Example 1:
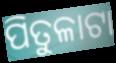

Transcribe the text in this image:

ପିତୁଳାଟା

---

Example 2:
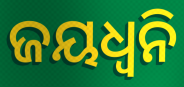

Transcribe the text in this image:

ଜୟଧ୍ଵନି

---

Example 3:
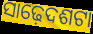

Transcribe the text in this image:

ସାଢ଼େଦଶଟା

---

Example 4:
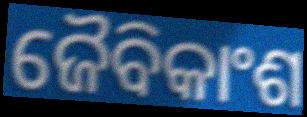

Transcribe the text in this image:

ଜୈବିକାଂଶ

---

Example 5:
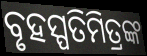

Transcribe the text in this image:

ବୃହସ୍ପତିମିତ୍ରଙ୍କ